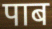
पाब